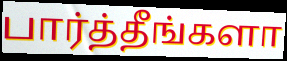
பார்த்தீங்களா